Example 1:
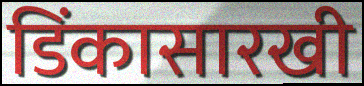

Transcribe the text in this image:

डिंकासारखी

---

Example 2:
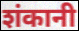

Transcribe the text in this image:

शंकानी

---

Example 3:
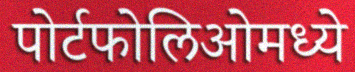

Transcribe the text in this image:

पोर्टफोलिओमध्ये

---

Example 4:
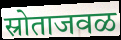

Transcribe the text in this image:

स्रोताजवळ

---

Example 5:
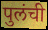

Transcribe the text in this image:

पुलंची